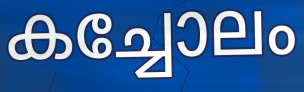
കച്ചോലം